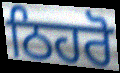
ਠਿਹਰੋ